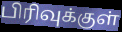
பிரிவுக்குள்